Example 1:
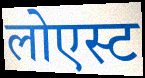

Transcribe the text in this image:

लोएस्ट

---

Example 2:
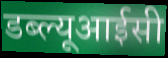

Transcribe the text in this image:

डब्ल्यूआईसी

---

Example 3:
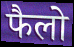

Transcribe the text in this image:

फैलो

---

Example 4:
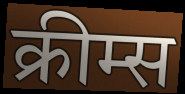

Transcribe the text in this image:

क्रीम्‍स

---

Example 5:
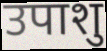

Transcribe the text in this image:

उपाशु